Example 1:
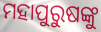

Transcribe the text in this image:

ମହାପୁରୁଷଙ୍କୁ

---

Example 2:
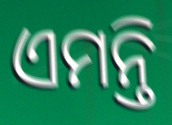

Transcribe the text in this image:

ଏମନ୍ତି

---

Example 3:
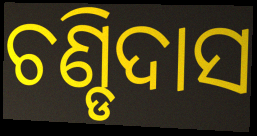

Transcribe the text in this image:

ଚଣ୍ଡିଦାସ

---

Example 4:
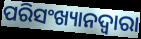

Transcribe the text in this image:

ପରିସଂଖ୍ୟାନଦ୍ଵାରା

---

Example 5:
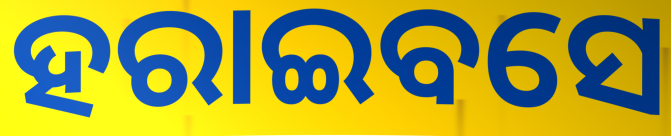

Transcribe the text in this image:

ହରାଇବସେ